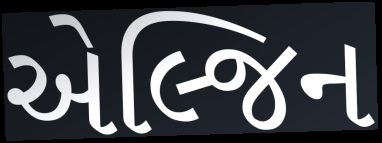
એલ્જિન